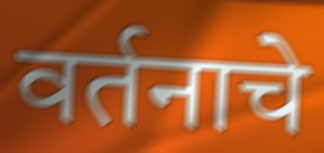
वर्तनाचे